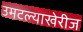
उमटल्याखेरीज